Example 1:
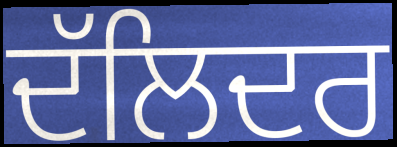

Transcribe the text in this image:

ਦੱਲਿਦਰ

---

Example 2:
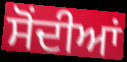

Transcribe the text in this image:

ਸੋਂਦੀਆਂ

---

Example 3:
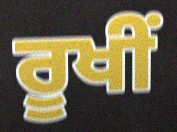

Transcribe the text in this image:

ਰੂਖੀਂ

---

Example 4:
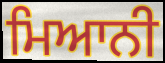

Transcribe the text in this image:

ਮਿਆਨੀ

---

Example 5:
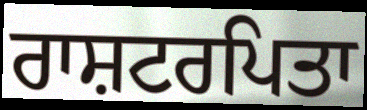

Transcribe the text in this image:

ਰਾਸ਼ਟਰਪਿਤਾ